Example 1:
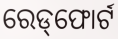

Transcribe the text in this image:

ରେଡ୍‌ଫୋର୍ଟ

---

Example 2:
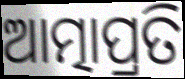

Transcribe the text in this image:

ଆତ୍ମାପ୍ରତି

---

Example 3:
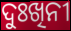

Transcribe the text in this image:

ଦୁଃଖିନୀ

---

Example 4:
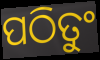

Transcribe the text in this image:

ପଠିତୁଂ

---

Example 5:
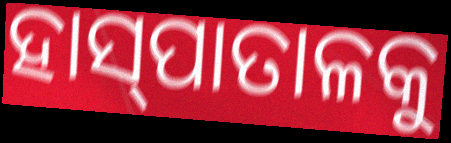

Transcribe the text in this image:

ହାସ୍‍ପାତାଳକୁ